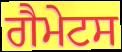
ਗੈਮੇਟਸ